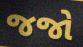
જજો